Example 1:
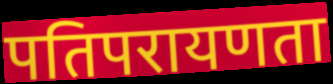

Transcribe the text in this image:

पतिपरायणता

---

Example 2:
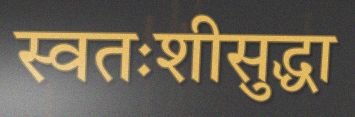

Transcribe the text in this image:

स्वतःशीसुद्धा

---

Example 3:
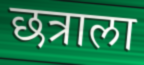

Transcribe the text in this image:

छत्राला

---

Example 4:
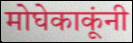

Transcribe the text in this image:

मोघेकाकूंनी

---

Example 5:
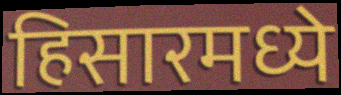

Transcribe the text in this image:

हिसारमध्ये